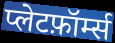
प्लेटफ़ॉर्म्स